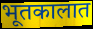
भूतकालात